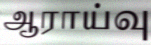
ஆராய்வு